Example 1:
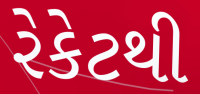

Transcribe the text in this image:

રેકેટથી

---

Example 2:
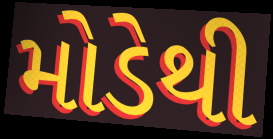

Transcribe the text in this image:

મોડેથી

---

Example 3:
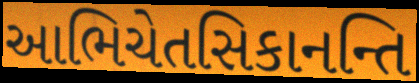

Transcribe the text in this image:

આભિચેતસિકાનન્તિ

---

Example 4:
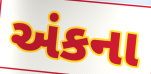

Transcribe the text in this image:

અંકના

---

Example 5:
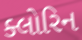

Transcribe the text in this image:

ક્લોરિન